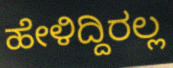
ಹೇಳಿದ್ದಿರಲ್ಲ